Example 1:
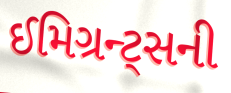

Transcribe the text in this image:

ઈમિગ્રન્ટ્સની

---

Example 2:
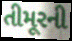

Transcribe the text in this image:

તીમૂરની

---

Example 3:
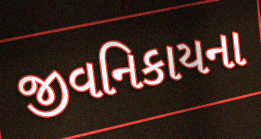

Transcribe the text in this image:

જીવનિકાયના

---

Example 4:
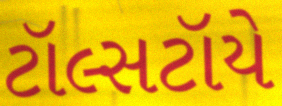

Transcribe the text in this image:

ટૉલ્સટૉયે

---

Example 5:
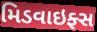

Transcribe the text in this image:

મિડવાઇફ્સ